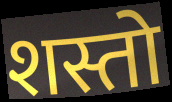
शस्तो